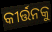
କୀର୍ତ୍ତନକୁ